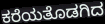
ಕರೆಯತೊಡಗಿದ